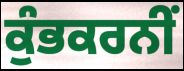
ਕੁੰਭਕਰਨੀਂ